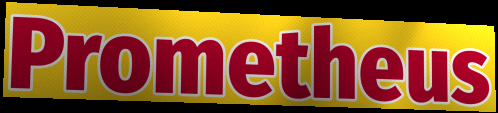
Prometheus